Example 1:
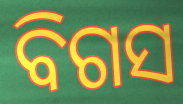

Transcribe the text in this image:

ବିଗସ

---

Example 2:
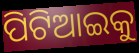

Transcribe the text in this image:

ପିଟିଆଇକୁ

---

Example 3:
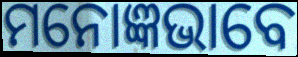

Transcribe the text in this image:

ମନୋଜ୍ଞଭାବେ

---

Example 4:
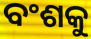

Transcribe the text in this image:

ବଂଶକୁ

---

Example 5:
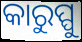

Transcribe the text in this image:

କାରୁପ୍ପୁ